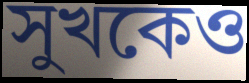
সুখকেও